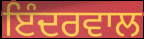
ਇੰਦਰਵਾਲ